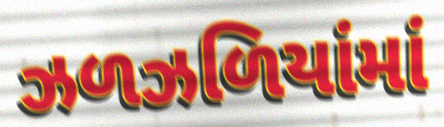
ઝળઝળિયાંમાં